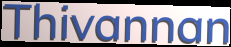
Thivannan